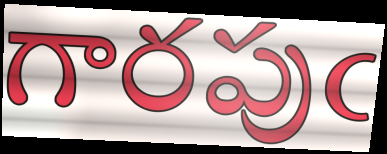
గారపుఁ